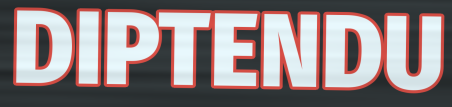
DIPTENDU